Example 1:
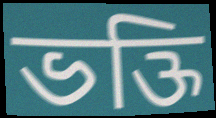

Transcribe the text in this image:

ভক্তি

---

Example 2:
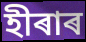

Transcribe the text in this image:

হীৰাৰ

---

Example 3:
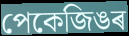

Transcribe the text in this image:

পেকেজিঙৰ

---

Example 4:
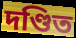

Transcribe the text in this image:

দণ্ডিত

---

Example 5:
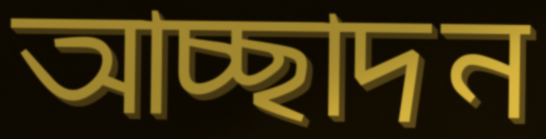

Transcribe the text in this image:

আচ্ছাদন